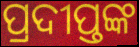
ପ୍ରଦୀପ୍ତଙ୍କ